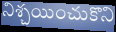
నిశ్చయించుకొని